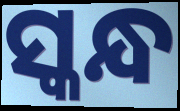
ସ୍କନ୍ଧ